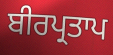
ਬੀਰਪ੍ਰਤਾਪ